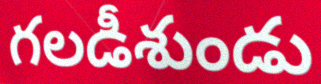
గలడీశుండు